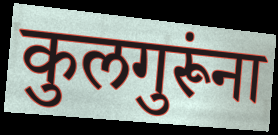
कुलगुरूंना